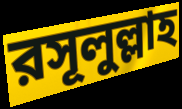
রসূলুল্লাহ